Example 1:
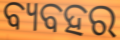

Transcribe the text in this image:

ବ୍ଯବହର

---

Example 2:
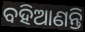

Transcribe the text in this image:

ବହିଆଣନ୍ତି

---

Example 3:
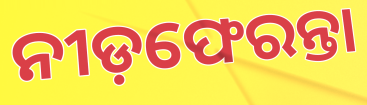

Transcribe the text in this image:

ନୀଡ଼ଫେରନ୍ତା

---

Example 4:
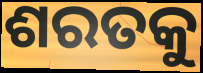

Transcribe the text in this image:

ଶରତକୁ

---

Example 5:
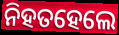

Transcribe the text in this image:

ନିହତହେଲେ